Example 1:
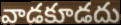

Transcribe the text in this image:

వాడకూడదు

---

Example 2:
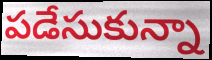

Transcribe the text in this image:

పడేసుకున్నా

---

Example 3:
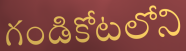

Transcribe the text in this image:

గండికోటలోని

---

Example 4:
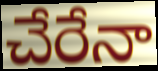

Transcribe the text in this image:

చేరేనా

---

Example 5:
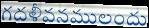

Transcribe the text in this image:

గదళీవనములందు